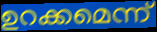
ഉറക്കമെന്ന്